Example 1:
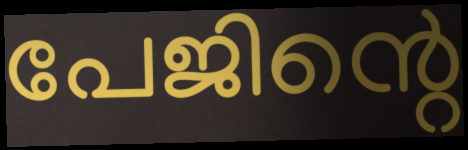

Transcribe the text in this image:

പേജിന്റെ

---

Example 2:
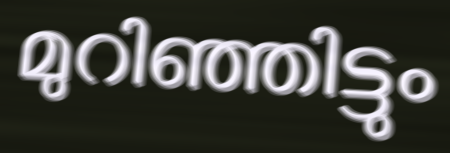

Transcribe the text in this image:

മുറിഞ്ഞിട്ടും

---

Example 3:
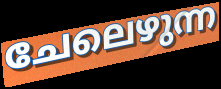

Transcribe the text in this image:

ചേലെഴുന്ന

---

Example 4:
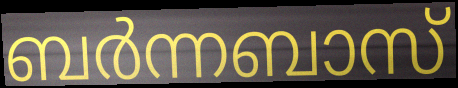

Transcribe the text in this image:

ബർന്നബാസ്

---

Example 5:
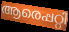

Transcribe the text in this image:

ആരെപ്പറ്റി